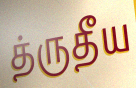
த்ருதீய